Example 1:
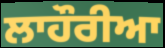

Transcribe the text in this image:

ਲਾਹੌਰੀਆ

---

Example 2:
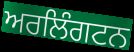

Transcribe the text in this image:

ਅਰਲਿੰਗਟਨ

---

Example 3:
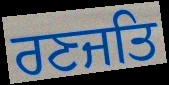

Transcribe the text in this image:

ਰਣਜਤਿ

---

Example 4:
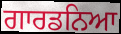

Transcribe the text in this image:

ਗਾਰਡਨਿਆ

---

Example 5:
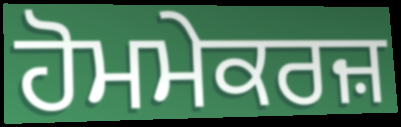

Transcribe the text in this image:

ਹੋਮਮੇਕਰਜ਼